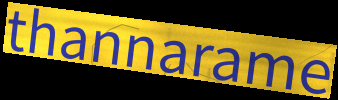
thannarame